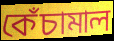
কেঁচামাল